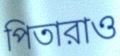
পিতারাও